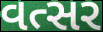
વત્સર